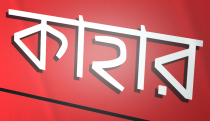
কাহার